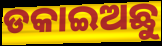
ଡକାଇଅଛୁ